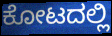
ಕೋಟದಲ್ಲಿ